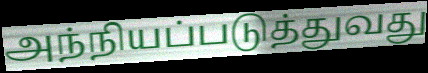
அந்நியப்படுத்துவது